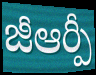
జీఆర్పీ